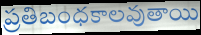
ప్రతిబంధకాలవుతాయి